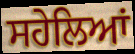
ਸਹੇਲਿਆਂ